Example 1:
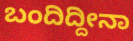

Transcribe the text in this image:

ಬಂದಿದ್ದೀನಾ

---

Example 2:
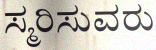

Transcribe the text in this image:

ಸ್ಮರಿಸುವರು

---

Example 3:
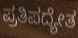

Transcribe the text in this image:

ಪ್ರತಿಪದ್ಯೇತ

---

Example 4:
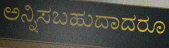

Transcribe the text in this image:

ಅನ್ನಿಸಬಹುದಾದರೂ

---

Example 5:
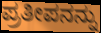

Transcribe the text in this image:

ಪ್ರತೀಪನನ್ನು